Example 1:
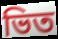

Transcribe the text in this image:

ভিত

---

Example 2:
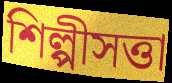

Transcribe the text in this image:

শিল্পীসত্তা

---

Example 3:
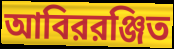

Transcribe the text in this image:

আবিররঞ্জিত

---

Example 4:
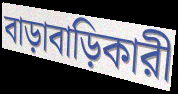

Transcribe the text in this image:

বাড়াবাড়িকারী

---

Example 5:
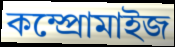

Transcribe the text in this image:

কম্প্রোমাইজ